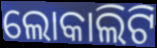
ଲୋକାଲିଟି